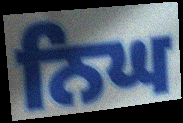
ਨਿਘ